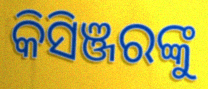
କିସିଞ୍ଜରଙ୍କୁ